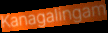
Kanagalingam